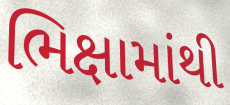
ભિક્ષામાંથી